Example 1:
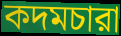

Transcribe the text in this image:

কদমচারা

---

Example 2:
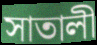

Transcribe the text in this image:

সাতালী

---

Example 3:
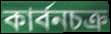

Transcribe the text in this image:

কার্বনচক্র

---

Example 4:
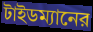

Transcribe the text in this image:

টাইডম্যানের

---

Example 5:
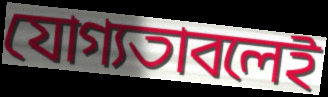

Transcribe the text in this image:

যোগ্যতাবলেই